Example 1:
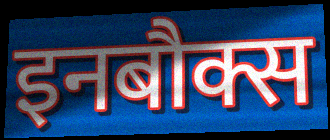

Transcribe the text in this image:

इनबौक्स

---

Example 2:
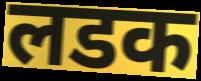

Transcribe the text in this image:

लडक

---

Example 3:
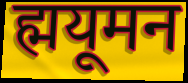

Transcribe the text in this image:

ह्मयूमन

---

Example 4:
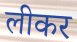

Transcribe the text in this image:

लीकर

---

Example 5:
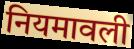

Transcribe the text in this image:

नियमावली